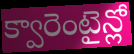
క్వారెంటైన్లో